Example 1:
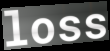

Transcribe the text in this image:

loss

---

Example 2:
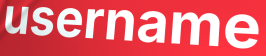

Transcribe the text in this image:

username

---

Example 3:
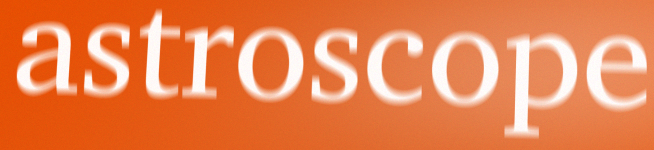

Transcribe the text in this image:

astroscope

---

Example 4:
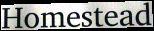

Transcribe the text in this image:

Homestead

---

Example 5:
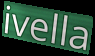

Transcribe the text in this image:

ivella